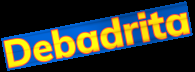
Debadrita